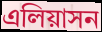
এলিয়াসন